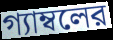
গ্যাম্বলের